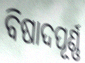
ବିଷାଦପୂର୍ଣ୍ଣ